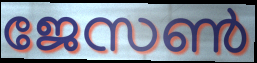
ജേസൺ